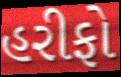
હરીફો